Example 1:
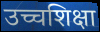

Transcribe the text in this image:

उच्‍चशिक्षा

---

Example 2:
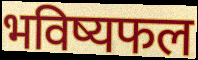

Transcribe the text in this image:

भविष्‍यफल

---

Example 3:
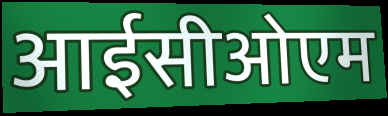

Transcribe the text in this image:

आईसीओएम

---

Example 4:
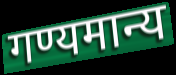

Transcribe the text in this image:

गण्यमान्य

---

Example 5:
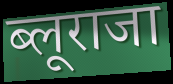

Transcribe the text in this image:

ब्लूराजा